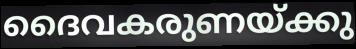
ദൈവകരുണയ്ക്കു